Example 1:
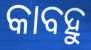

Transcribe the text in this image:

କାବହୁ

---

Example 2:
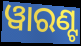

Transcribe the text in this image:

ୱାରଣ୍ଟ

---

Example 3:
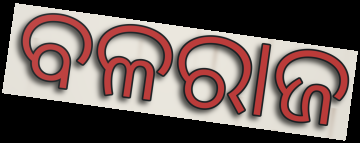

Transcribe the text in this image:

ବଳରାଜ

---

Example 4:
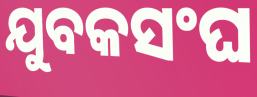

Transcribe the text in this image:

ଯୁବକସଂଘ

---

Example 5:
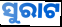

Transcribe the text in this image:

ସୁରାଟ